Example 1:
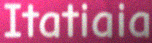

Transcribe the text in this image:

Itatiaia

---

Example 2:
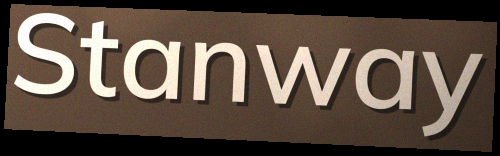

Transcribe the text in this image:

Stanway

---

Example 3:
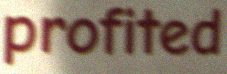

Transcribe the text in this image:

profited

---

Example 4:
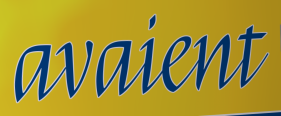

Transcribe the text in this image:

avaient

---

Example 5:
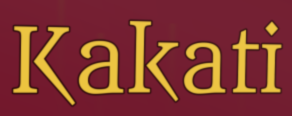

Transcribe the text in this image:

Kakati